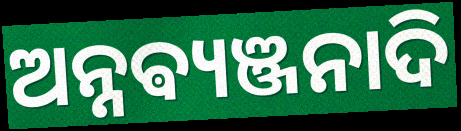
ଅନ୍ନଵ୍ୟଞ୍ଜନାଦି